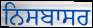
ਨਿਸਬਾਸਰ